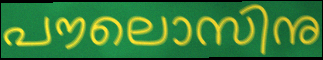
പൗലൊസിനു